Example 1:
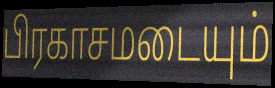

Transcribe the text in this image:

பிரகாசமடையும்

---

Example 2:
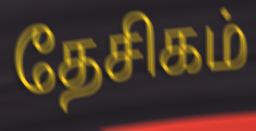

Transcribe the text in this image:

தேசிகம்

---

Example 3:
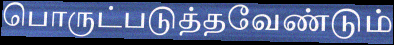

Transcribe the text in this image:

பொருட்படுத்தவேண்டும்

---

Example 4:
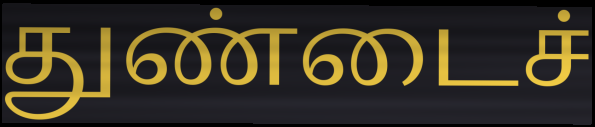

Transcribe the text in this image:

துண்டைச்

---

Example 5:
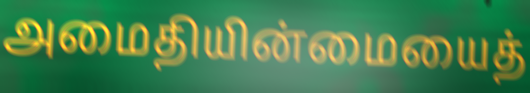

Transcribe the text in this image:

அமைதியின்மையைத்